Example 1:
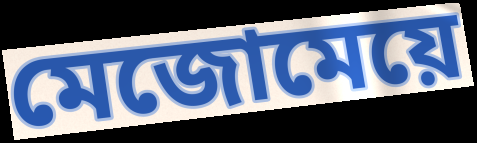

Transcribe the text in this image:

মেজোমেয়ে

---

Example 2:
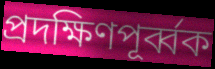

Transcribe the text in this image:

প্রদক্ষিণপূর্ব্বক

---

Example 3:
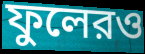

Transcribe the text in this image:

ফুলেরও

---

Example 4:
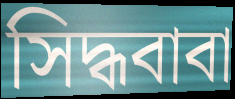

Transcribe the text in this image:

সিদ্ধবাবা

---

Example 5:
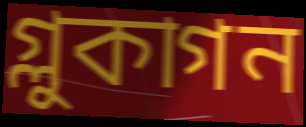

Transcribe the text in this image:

গ্লুকাগন